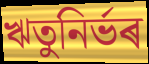
ঋতুনিৰ্ভৰ